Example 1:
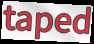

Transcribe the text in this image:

taped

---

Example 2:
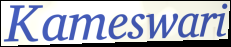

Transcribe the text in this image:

Kameswari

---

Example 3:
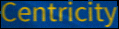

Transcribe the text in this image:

Centricity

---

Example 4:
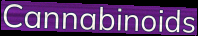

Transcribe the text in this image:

Cannabinoids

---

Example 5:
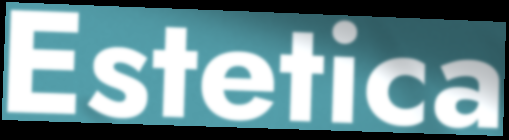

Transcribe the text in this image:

Estetica